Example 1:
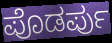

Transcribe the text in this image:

ಪೊಡರ್ಪು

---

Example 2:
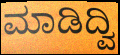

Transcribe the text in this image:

ಮಾಡಿದ್ವಿ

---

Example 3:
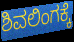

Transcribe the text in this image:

ಶಿವಲಿಂಗಕ್ಕೆ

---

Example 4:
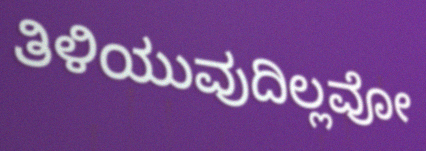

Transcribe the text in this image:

ತಿಳಿಯುವುದಿಲ್ಲವೋ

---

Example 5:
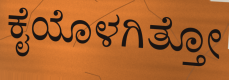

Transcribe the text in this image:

ಕೈಯೊಳಗಿತ್ತೋ